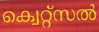
ക്വെറ്റ്സൽ